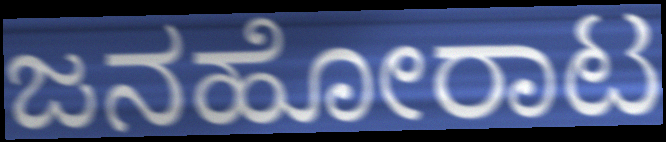
ಜನಹೋರಾಟ